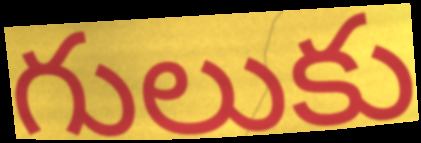
గులుకు